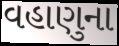
વહાણુના